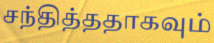
சந்தித்ததாகவும்